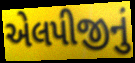
એલપીજીનું